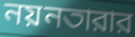
নয়নতারার